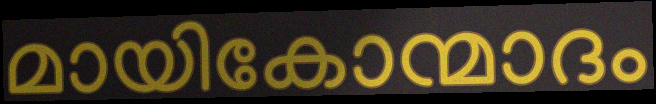
മായികോന്മാദം